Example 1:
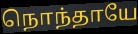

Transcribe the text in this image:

நொந்தாயே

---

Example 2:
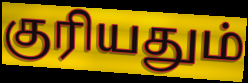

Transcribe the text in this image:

குரியதும்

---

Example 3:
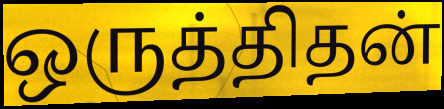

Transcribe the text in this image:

ஒருத்திதன்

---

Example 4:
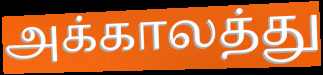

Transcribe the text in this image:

அக்காலத்து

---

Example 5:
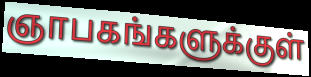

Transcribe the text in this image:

ஞாபகங்களுக்குள்